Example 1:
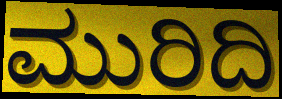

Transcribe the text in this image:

ಮುರಿದಿ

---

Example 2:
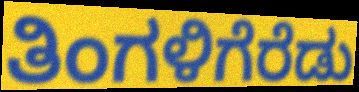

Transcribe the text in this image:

ತಿಂಗಳಿಗೆರೆಡು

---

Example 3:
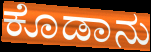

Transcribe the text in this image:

ಕೊಡಾನು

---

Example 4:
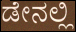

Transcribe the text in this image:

ಡೇನಲ್ಲಿ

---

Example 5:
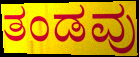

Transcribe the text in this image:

ತಂಡವು